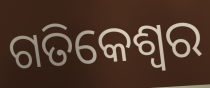
ଗତିକେଶ୍ବର